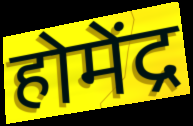
होमेंद्र